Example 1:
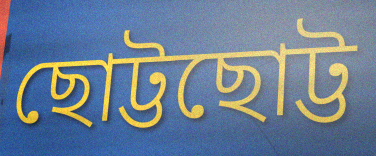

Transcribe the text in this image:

ছোট্টছোট্ট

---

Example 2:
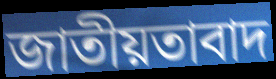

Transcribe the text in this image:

জাতীয়তাবাদ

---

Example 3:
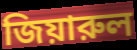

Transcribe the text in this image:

জিয়ারুল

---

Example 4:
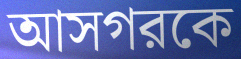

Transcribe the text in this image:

আসগরকে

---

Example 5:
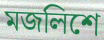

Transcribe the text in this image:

মজলিশে